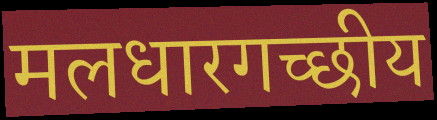
मलधारगच्छीय